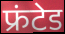
फ्रंटेड